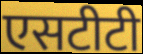
एसटीटी